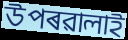
উপৰৱালাই